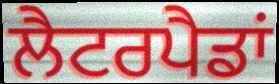
ਲੈਟਰਪੈਡਾਂ